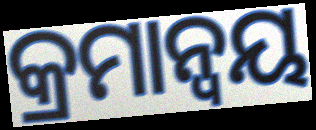
କ୍ରମାନ୍ୱୟ